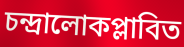
চন্দ্রালোকপ্লাবিত